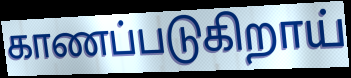
காணப்படுகிறாய்